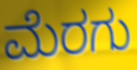
ಮೆರಗು